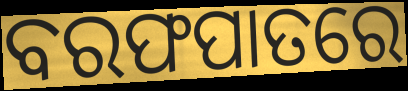
ବରଫପାତରେ